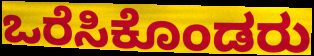
ಒರೆಸಿಕೊಂಡರು